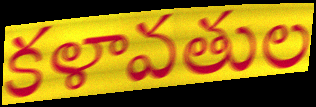
కళావతుల